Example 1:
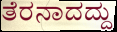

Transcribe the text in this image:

ತೆರನಾದದ್ದು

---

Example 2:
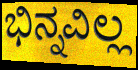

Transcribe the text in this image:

ಭಿನ್ನವಿಲ್ಲ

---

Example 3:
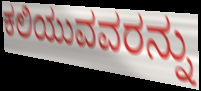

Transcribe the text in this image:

ಕಲಿಯುವವರನ್ನು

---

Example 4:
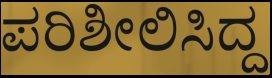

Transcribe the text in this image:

ಪರಿಶೀಲಿಸಿದ್ದ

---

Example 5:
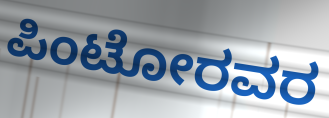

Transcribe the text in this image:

ಪಿಂಟೋರವರ